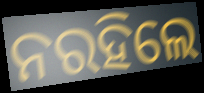
ନରହିଲେ